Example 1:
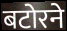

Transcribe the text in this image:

बटोरने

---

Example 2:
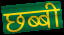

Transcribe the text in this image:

छब्बी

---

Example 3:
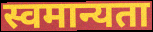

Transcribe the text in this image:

स्वमान्यता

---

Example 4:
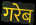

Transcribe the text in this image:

गरेब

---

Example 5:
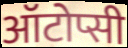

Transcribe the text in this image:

ऑटोप्सी